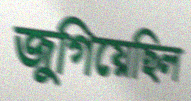
জুগিয়েছিল